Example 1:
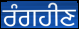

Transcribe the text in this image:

ਰੰਗਹੀਣ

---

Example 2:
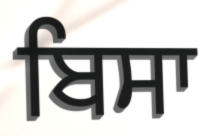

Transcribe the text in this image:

ਬਿਸਾ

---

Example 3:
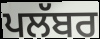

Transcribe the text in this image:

ਪਲੱਬਰ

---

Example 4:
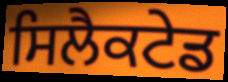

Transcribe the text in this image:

ਸਿਲੈਕਟੇਡ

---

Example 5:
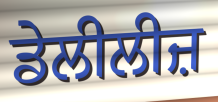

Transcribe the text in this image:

ਡੇਲੀਲੀਜ਼